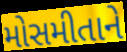
મોસમીતાને